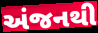
અંજનથી